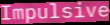
Impulsive